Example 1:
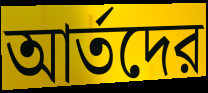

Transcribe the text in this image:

আর্তদের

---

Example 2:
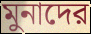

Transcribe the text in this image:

মুনাদের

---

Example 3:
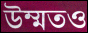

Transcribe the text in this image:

উম্মতও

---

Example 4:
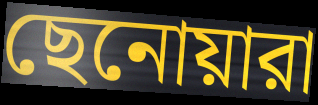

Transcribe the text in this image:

ছেনোয়ারা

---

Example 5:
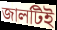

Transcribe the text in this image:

জালটিই